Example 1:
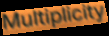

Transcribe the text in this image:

Multiplicity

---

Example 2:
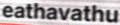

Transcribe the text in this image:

eathavathu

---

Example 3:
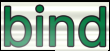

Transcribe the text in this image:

bind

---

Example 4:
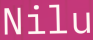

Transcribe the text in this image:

Nilu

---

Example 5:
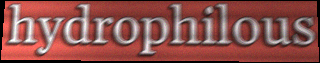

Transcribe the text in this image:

hydrophilous